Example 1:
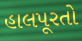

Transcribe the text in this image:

હાલપૂરતો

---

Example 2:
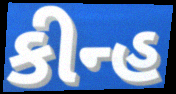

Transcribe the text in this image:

કીન્હ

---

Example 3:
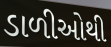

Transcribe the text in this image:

ડાળીઓથી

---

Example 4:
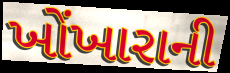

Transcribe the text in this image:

ખોંખારાની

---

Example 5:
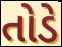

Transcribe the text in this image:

તોડે